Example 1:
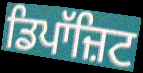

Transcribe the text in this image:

ਡਿਪਾੱਜ਼ਿਟ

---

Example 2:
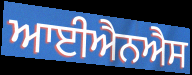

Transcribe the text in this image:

ਆਈਐਨਐਸ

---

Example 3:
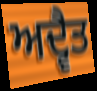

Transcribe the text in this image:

ਅਦ੍ਵੈਤ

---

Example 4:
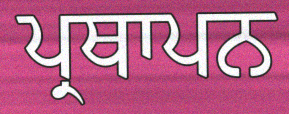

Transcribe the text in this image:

ਪ੍ਰਥਾਪਨ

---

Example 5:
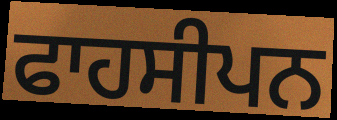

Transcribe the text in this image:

ਫਾਹਸੀਪਨ